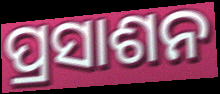
ପ୍ରସାଶନ